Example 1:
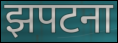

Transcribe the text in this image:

झपटना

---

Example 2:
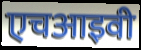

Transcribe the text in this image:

एचआइवी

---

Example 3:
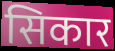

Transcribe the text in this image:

सिकार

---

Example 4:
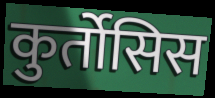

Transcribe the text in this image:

कुर्तोसिस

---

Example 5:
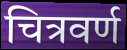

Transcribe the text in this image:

चित्रवर्ण